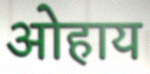
ओहाय